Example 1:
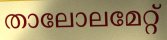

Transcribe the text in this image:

താലോലമേറ്റ്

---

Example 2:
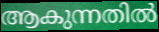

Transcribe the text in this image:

ആകുന്നതിൽ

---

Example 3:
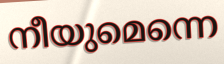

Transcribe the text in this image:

നീയുമെന്നെ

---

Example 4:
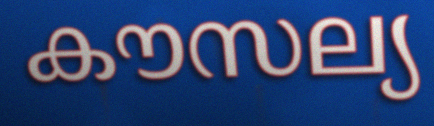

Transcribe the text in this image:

കൗസല്യ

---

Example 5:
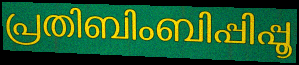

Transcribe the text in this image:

പ്രതിബിംബിപ്പിപ്പൂ